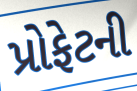
પ્રોફેટની